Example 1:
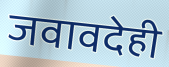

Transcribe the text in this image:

जवावदेही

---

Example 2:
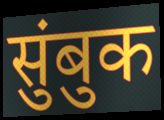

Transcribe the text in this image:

सुंबुक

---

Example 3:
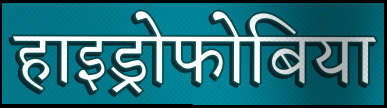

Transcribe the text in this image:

हाइड्रोफोबिया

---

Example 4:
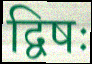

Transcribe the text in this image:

द्विषः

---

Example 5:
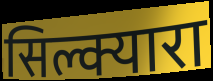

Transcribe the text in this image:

सिल्क्यारा